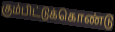
கும்பிட்டுக்கொண்டு